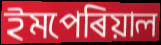
ইমপেৰিয়াল